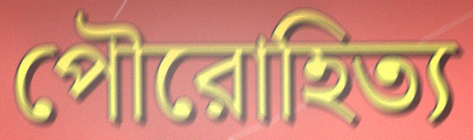
পৌরোহিত্য